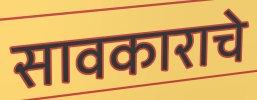
सावकाराचे